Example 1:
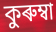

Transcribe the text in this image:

কুৰুম্বা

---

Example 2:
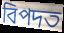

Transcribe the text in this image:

বিপদত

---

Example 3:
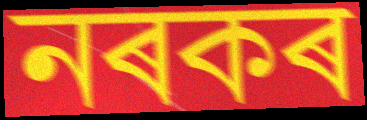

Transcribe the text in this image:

নৰকৰ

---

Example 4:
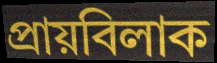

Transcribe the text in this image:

প্ৰায়বিলাক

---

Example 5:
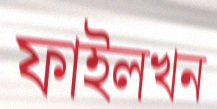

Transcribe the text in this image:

ফাইলখন